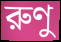
রুণু